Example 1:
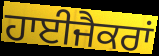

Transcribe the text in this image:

ਹਾਈਜੈਕਰਾਂ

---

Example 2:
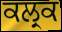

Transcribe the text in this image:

ਕਲ੍ਰਕ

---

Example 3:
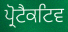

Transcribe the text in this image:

ਪ੍ਰੋਟੈਕਟਿਵ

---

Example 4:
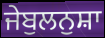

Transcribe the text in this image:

ਜੇਬੁਲਨੁਸ਼ਾ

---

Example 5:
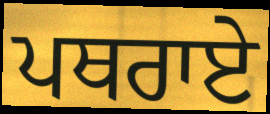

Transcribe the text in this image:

ਪਥਰਾਏ